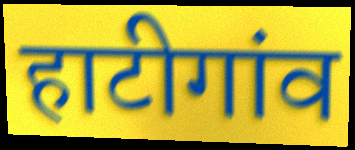
हाटीगांव